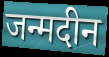
जन्मदीन